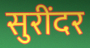
सुरींदर